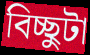
বিচ্ছুটা